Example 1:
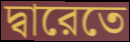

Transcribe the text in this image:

দ্বারেতে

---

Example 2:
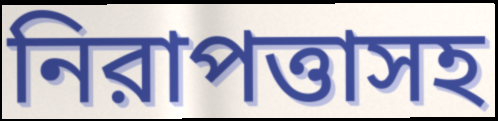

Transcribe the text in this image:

নিরাপত্তাসহ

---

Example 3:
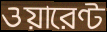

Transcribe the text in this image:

ওয়ারেণ্ট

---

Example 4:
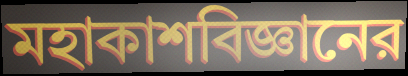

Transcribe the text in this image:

মহাকাশবিজ্ঞানের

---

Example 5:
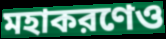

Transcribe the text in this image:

মহাকরণেও